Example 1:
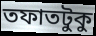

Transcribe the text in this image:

তফাতটুকু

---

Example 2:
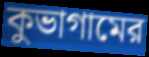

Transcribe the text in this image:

কুভাগামের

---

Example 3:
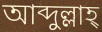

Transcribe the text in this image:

আব্দুল্লাহ্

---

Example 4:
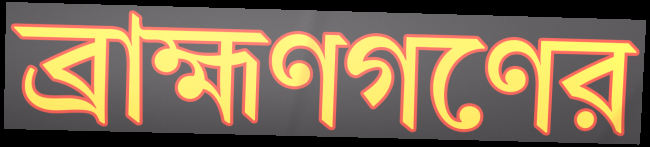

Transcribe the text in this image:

ব্রাহ্মণগণের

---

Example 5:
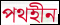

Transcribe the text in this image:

পথহীন